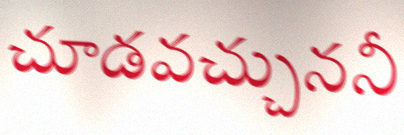
చూడవచ్చుననీ